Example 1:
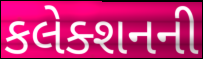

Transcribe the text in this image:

કલેક્શનની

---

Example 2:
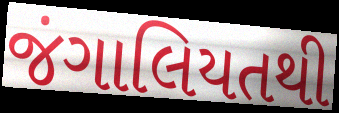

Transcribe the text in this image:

જંગાલિયતથી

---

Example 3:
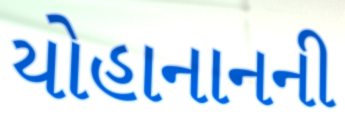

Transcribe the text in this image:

યોહાનાનની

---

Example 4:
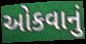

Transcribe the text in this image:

ઓકવાનું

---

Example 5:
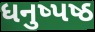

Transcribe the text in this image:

ધનુષ્પષ્ઠ